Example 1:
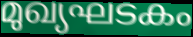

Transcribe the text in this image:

മുഖ്യഘടകം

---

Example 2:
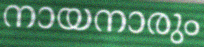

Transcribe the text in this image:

നായനാരും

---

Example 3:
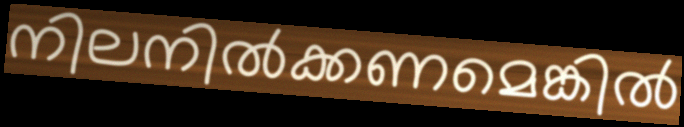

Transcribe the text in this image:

നിലനിൽക്കണമെങ്കിൽ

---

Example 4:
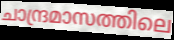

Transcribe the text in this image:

ചാന്ദ്രമാസത്തിലെ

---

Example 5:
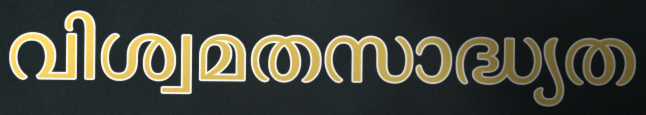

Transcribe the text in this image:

വിശ്വമതസാദ്ധ്യത